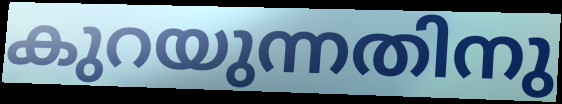
കുറയുന്നതിനു